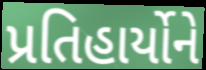
પ્રતિહાર્યોને